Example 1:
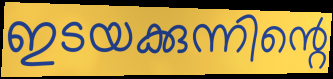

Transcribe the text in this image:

ഇടയക്കുന്നിന്റെ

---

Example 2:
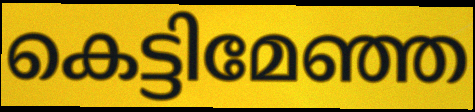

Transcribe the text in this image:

കെട്ടിമേഞ്ഞ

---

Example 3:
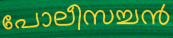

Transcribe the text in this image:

പോലീസച്ചൻ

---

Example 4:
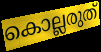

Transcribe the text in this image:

കൊല്ലരുത്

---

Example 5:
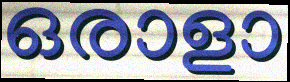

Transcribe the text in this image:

ഒരാളാ